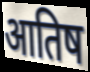
आतिष